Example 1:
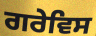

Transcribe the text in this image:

ਗਰੇਵਿਸ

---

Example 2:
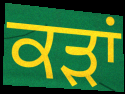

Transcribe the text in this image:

ਕੜਾਂ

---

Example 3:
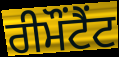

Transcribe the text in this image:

ਰੀਮੌਂਟੈਂਟ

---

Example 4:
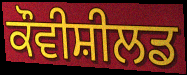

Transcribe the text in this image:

ਕੌਵੀਸ਼ੀਲਡ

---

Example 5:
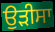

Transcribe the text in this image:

ਉਡ਼ੀਸਾ